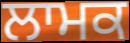
ਲਾਮਕ